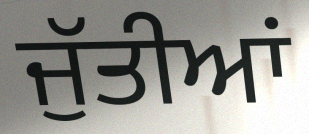
ਜੁੱਤੀਆਂ